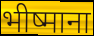
भीष्माना